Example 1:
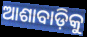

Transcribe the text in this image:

ଆଶାବାଡ଼ିକୁ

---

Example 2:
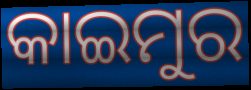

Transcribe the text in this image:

କାଇମୁର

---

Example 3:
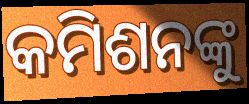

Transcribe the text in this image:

କମିଶନଙ୍କୁ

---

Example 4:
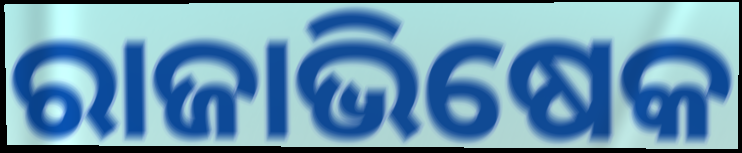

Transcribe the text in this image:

ରାଜାଭିଷେକ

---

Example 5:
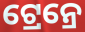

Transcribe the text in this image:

ଟ୍ରେନ୍ରେ